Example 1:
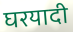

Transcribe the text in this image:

घरयादी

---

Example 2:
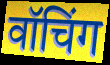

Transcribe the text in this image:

वॉचिंग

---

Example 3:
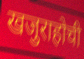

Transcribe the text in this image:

खजुराहोची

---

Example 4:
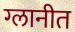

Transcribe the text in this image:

ग्लानीत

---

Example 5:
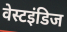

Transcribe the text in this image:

वेस्टइंडिज